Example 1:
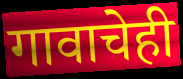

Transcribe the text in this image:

गावाचेही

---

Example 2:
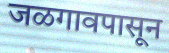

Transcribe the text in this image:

जळगावपासून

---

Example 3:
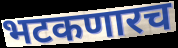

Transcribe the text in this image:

भटकणारच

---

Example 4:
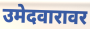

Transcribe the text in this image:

उमेदवारावर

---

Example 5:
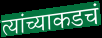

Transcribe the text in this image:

त्यांच्याकडचं